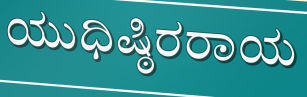
ಯುಧಿಷ್ಠಿರರಾಯ